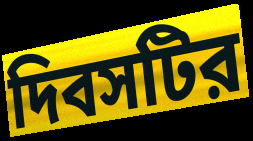
দিবসটির